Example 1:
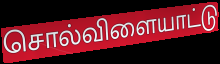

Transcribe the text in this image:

சொல்விளையாட்டு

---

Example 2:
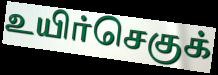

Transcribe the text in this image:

உயிர்செகுக்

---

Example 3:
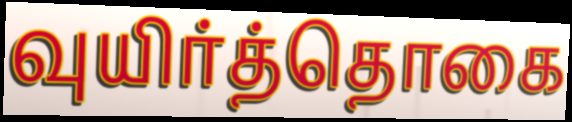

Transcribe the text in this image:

வுயிர்த்தொகை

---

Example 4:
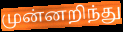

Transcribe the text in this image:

முன்னறிந்து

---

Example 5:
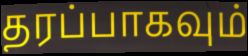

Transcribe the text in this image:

தரப்பாகவும்